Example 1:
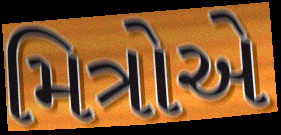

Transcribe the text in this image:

મિત્રોએ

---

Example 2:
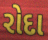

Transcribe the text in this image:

રોદા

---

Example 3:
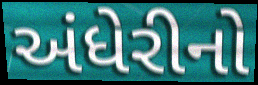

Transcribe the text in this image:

અંધેરીનો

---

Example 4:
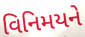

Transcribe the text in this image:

વિનિમયને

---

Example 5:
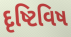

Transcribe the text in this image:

દૃષ્ટિવિષ